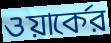
ওয়ার্কের